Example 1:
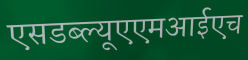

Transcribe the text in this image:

एसडब्ल्यूएएमआईएच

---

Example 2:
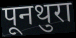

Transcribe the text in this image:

पूनथुरा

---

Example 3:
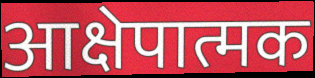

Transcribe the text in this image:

आक्षेपात्मक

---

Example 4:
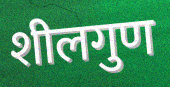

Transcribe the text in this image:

शीलगुण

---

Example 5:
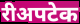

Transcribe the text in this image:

रीअपटेक